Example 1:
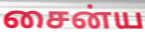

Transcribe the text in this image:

சைன்ய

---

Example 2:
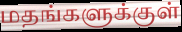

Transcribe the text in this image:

மதங்களுக்குள்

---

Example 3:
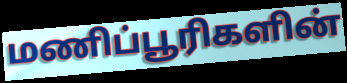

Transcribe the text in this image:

மணிப்பூரிகளின்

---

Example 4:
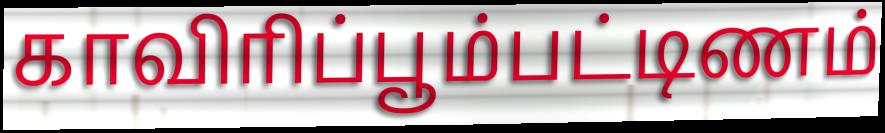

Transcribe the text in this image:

காவிரிப்பூம்பட்டிணம்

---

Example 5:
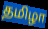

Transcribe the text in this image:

தமிழா